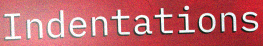
Indentations